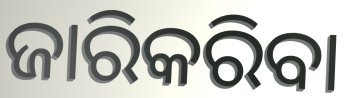
ଜାରିକରିବା